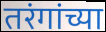
तरंगांच्या